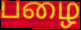
பழை